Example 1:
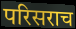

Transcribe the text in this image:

परिसराच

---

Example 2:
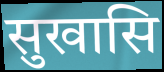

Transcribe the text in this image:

सुखासि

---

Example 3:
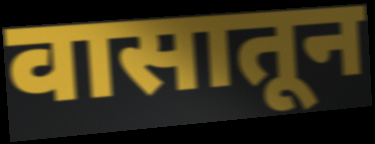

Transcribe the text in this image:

वासातून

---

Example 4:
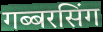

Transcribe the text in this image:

गब्बरसिंग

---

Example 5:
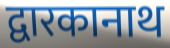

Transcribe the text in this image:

द्वारकानाथ